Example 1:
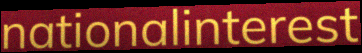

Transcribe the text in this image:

nationalinterest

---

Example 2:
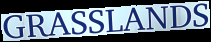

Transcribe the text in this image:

GRASSLANDS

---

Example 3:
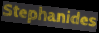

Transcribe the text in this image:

Stephanides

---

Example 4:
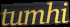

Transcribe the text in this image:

tumhi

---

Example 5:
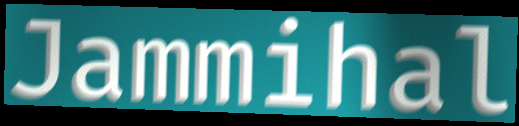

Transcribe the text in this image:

Jammihal